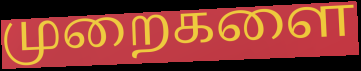
முறைகளை